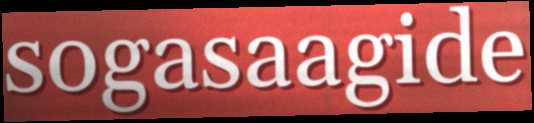
sogasaagide